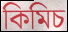
কিমিচ